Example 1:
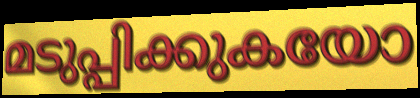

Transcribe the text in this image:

മടുപ്പിക്കുകയോ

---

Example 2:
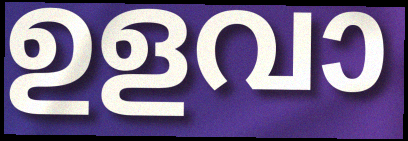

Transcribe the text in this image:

ഉളവാ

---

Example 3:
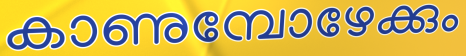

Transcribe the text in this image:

കാണുമ്പോഴേക്കും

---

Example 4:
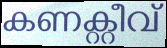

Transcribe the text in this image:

കണക്റ്റീവ്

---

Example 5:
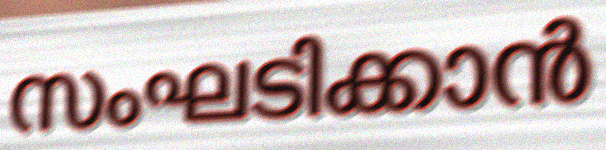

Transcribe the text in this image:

സംഘടിക്കാൻ